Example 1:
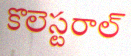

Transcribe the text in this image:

కొలెస్టరాల్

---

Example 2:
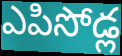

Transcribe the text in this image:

ఎపిసోడ్ల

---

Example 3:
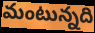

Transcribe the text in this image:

మంటున్నది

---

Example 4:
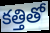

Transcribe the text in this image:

కత్తితో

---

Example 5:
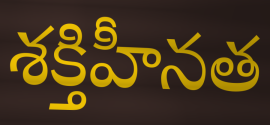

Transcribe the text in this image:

శక్తిహీనత